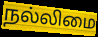
நல்லிமை